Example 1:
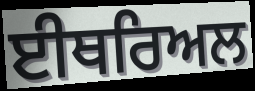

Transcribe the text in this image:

ਈਥਰਿਅਲ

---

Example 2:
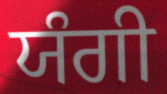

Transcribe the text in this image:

ਯੰਗੀ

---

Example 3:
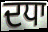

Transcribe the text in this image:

ਦਧਾ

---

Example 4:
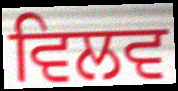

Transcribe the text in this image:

ਵਿਲਵ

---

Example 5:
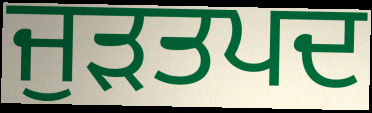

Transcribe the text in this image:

ਜੁੜਤਪਦ